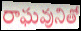
రాఘవునితో